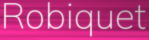
Robiquet